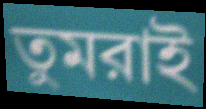
তুমরাই